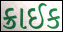
ક્રાઈક